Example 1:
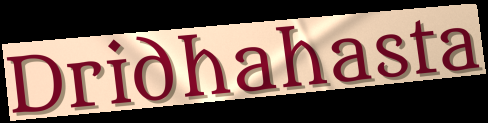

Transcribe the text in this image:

Dridhahasta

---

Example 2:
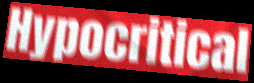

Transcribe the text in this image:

Hypocritical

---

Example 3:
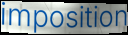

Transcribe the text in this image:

imposition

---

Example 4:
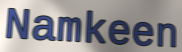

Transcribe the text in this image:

Namkeen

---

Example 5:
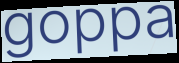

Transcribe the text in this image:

goppa